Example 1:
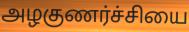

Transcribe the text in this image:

அழகுணர்ச்சியை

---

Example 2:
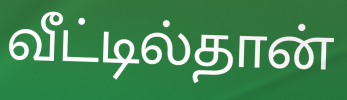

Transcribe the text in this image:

வீட்டில்தான்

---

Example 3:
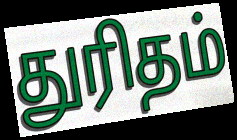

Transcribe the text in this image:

துரிதம்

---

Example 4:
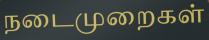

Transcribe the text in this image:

நடைமுறைகள்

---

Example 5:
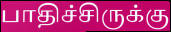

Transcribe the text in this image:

பாதிச்சிருக்கு